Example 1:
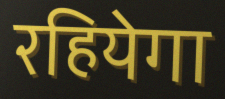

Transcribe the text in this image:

रहियेगा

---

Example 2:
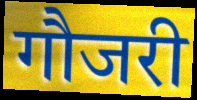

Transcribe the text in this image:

गौजरी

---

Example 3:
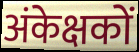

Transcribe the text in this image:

अंकेक्षकों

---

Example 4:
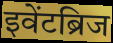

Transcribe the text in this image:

इवेंटब्रिज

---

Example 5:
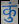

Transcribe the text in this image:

कुं